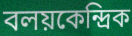
বলয়কেন্দ্রিক